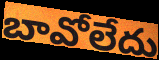
బావోలేదు